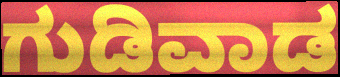
ಗುಡಿವಾಡ